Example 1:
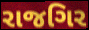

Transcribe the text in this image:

રાજગિર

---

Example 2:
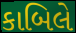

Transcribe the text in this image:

કાબિલે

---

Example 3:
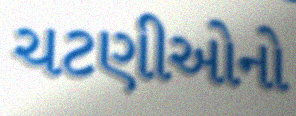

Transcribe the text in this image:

ચટણીઓનો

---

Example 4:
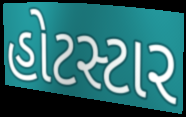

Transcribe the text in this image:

હોટસ્ટાર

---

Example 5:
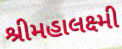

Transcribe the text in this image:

શ્રીમહાલક્ષ્મી